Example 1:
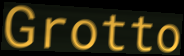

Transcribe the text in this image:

Grotto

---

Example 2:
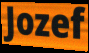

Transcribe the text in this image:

Jozef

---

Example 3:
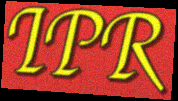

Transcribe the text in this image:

IPR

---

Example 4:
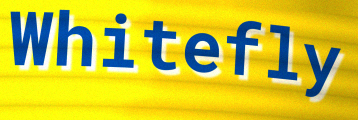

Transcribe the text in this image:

Whitefly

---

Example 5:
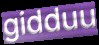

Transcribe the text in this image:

gidduu